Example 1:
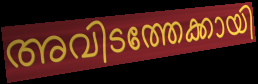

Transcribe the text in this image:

അവിടത്തേക്കായി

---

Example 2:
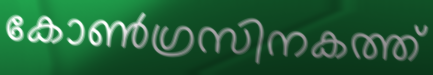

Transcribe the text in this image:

കോൺഗ്രസിനകത്ത്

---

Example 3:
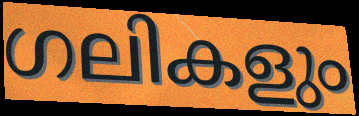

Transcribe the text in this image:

ഗലികളും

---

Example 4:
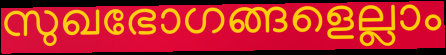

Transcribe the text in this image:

സുഖഭോഗങ്ങളെല്ലാം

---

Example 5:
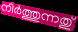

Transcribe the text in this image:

നിർത്തുന്നതു്